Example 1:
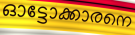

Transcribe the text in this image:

ഓട്ടോക്കാരനെ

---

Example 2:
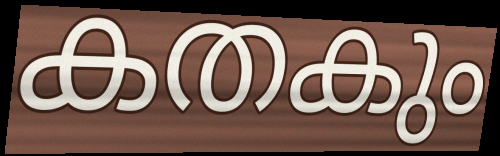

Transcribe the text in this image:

കതകും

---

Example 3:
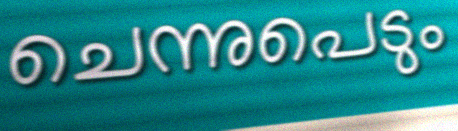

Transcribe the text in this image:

ചെന്നുപെടും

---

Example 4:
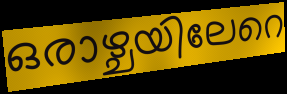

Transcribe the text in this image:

ഒരാഴ്ചയിലേറെ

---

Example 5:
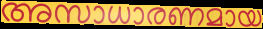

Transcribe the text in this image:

അസാധാരണമായ